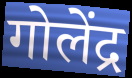
गोलेंद्र